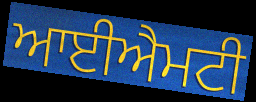
ਆਈਐਮਟੀ